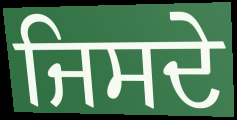
ਜਿਸਦੇ